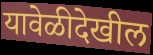
यावेळीदेखील